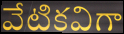
వేటికవిగా